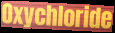
Oxychloride